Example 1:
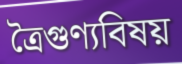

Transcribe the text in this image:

ত্রৈগুণ্যবিষয়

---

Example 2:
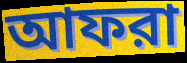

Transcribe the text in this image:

আফরা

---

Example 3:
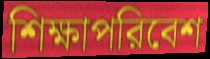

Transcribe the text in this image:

শিক্ষাপরিবেশ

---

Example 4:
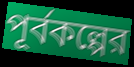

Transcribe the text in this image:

পূর্বকল্পের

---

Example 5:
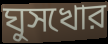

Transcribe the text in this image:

ঘুসখোর